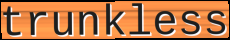
trunkless